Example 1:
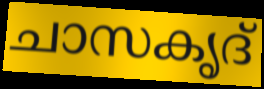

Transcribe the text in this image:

ചാസകൃദ്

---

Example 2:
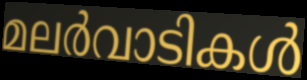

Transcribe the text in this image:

മലർവാടികൾ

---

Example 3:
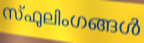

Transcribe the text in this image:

സ്ഫുലിംഗങ്ങൾ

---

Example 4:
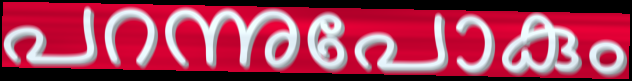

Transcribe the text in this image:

പറന്നുപോകും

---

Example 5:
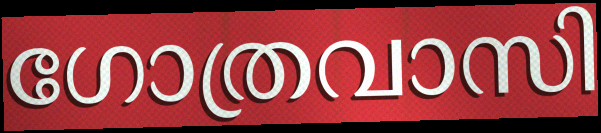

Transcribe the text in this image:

ഗോത്രവാസി